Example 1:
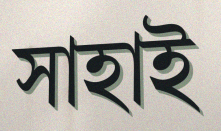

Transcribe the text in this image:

সাহাই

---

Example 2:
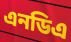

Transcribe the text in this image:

এনডিএ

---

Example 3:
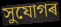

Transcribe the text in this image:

সুযোগৰ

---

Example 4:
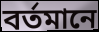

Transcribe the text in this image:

বৰ্তমানে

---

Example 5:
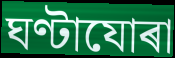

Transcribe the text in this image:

ঘণ্টাযোৰা